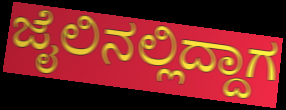
ಜೈಲಿನಲ್ಲಿದ್ದಾಗ